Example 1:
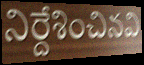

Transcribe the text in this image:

నిర్దేశించినవి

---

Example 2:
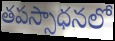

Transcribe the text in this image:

తపస్సాధనలో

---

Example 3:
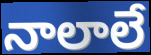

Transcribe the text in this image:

నాలాలే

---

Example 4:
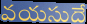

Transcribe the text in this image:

వయసుదే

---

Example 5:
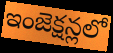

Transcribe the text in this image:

ఇంజెక్షన్లలో